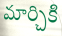
మార్చికి